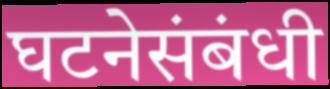
घटनेसंबंधी